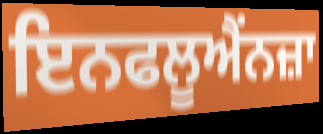
ਇਨਫਲੂਐਂਨਜ਼ਾ